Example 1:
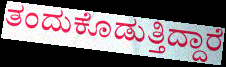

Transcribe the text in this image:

ತಂದುಕೊಡುತ್ತಿದ್ದಾರೆ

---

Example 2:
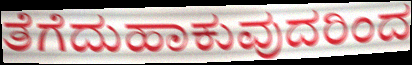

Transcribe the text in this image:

ತೆಗೆದುಹಾಕುವುದರಿಂದ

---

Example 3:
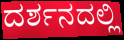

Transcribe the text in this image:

ದರ್ಶನದಲ್ಲಿ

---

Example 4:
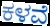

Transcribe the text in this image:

ಕಳವೆ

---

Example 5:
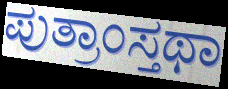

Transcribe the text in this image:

ಪುತ್ರಾಂಸ್ತಥಾ